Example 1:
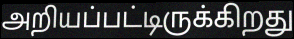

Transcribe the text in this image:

அறியப்பட்டிருக்கிறது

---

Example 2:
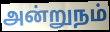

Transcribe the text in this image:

அன்றுநம்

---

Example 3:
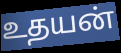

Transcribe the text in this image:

உதயன்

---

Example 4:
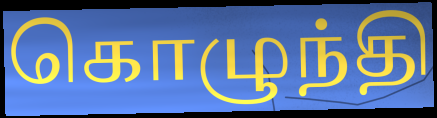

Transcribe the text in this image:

கொழுந்தி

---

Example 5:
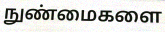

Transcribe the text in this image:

நுண்மைகளை